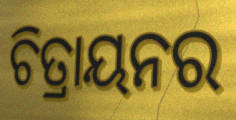
ଚିତ୍ରାୟନର